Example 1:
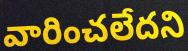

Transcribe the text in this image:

వారించలేదని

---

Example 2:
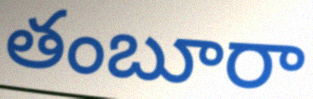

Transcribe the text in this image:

తంబూరా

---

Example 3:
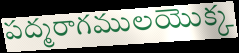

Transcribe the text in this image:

పద్మరాగములయొక్క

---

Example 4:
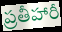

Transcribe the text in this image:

ప్రతీహారీ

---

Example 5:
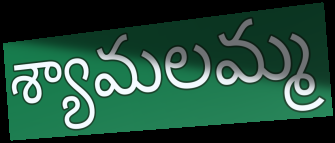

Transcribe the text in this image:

శ్యామలమ్మ